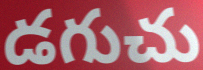
డగుచు